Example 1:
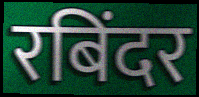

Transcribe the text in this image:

रबिंदर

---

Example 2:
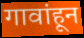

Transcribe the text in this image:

गावांहून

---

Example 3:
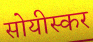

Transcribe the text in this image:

सोयीस्कर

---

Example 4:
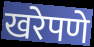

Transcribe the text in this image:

खरेपणे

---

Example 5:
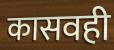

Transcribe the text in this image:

कासवही